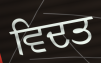
ਵਿਦਤ